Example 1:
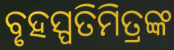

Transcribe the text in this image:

ବୃହସ୍ପତିମିତ୍ରଙ୍କ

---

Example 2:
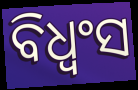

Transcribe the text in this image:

ବିଧ୍ଵଂସ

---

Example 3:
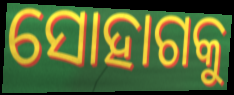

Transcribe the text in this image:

ସୋହାଗକୁ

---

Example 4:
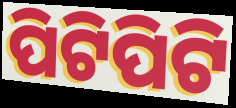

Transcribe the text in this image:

ପିଟିପିଟି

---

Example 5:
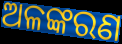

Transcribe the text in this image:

ଅଳଙ୍କରଣ